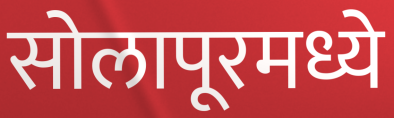
सोलापूरमध्ये